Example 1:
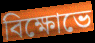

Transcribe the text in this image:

বিক্ষোভে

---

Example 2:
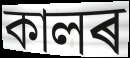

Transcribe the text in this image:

কালৰ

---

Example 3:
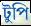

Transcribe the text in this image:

টুপি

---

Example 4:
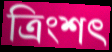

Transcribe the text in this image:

ত্ৰিংশৎ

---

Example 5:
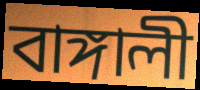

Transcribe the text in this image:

বাঙ্গালী